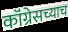
कॉंग्रेसच्याच